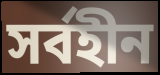
সর্বহীন